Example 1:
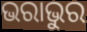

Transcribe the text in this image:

ଭରାଭୁର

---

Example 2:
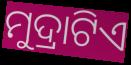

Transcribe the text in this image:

ମୁଦ୍ରାଟିଏ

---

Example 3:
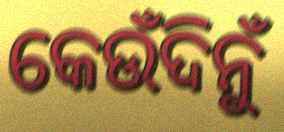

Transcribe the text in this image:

କେଉଁଦିନୁଁ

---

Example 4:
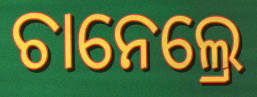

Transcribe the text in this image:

ଚାନେଲ୍ରେ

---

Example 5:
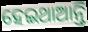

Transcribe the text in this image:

ହେଇଥାଆନ୍ତି